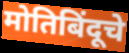
मोतिबिंदूचे